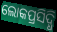
ଲୋକପ୍ରସିଦ୍ଧି